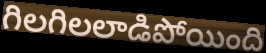
గిలగిలలాడిపోయింది